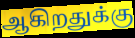
ஆகிறதுக்கு